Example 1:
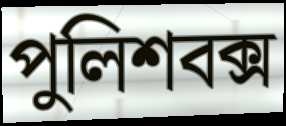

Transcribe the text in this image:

পুলিশবক্স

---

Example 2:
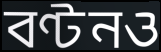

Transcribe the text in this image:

বণ্টনও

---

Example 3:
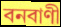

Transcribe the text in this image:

বনবাণী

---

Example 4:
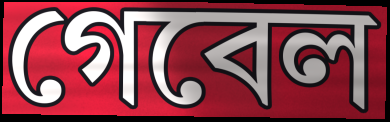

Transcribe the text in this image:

গেবেল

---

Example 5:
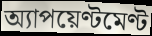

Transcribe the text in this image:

অ্যাপয়েণ্টমেণ্ট